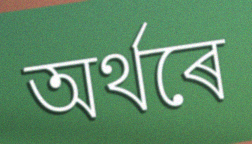
অৰ্থৰে